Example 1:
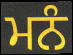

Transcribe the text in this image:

ਮਨੰ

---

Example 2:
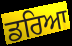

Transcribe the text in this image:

ਡਰਿਆ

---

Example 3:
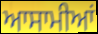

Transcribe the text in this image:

ਆਸਾਮੀਆਂ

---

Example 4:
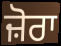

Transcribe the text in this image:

ਜ਼ੋਰਾ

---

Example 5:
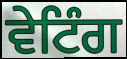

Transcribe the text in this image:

ਵੇਟਿੰਗ